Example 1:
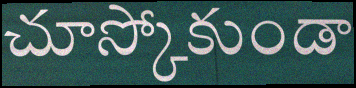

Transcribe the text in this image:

చూస్కోకుండా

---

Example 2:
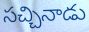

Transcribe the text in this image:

సచ్చినాడు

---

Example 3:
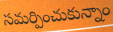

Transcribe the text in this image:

సమర్పించుకున్నాం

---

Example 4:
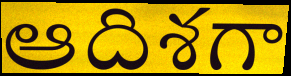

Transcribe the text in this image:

ఆదిశగా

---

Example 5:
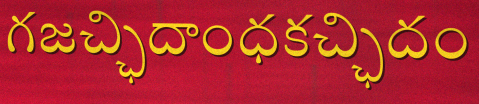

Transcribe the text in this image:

గజచ్ఛిదాంధకచ్ఛిదం